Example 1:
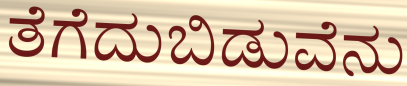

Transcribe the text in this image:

ತೆಗೆದುಬಿಡುವೆನು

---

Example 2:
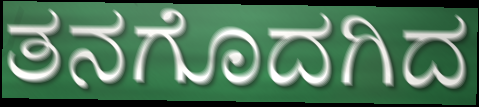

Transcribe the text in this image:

ತನಗೊದಗಿದ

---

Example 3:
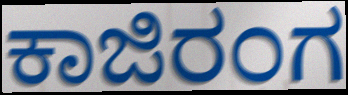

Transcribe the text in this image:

ಕಾಜಿರಂಗ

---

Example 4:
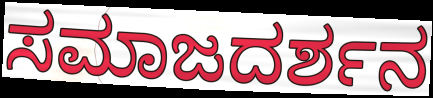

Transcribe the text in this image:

ಸಮಾಜದರ್ಶನ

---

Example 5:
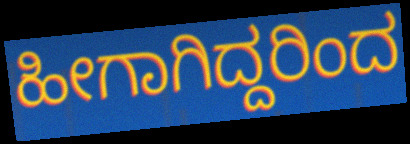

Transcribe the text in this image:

ಹೀಗಾಗಿದ್ದರಿಂದ